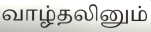
வாழ்தலினும்